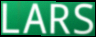
LARS